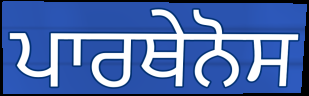
ਪਾਰਥੇਨੋਸ